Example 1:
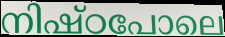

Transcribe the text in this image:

നിഷ്ഠപോലെ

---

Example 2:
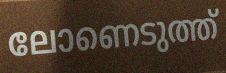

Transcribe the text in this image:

ലോണെടുത്ത്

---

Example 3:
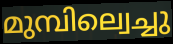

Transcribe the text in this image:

മുമ്പില്വെച്ചു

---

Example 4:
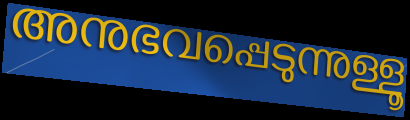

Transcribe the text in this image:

അനുഭവപ്പെടുന്നുള്ളൂ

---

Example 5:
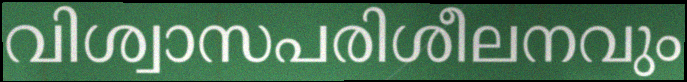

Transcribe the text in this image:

വിശ്വാസപരിശീലനവും